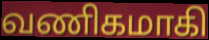
வணிகமாகி